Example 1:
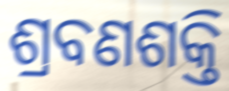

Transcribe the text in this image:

ଶ୍ରବଣଶକ୍ତି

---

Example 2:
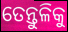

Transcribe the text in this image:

ତେନ୍ତୁଳିକୁ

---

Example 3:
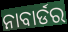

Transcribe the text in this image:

ନାବାର୍ଡର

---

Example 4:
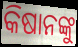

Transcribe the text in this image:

କିଷାନଙ୍କୁ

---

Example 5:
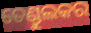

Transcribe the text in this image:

ତେଣ୍ଡୁଲକର